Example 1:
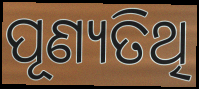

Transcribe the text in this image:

ପୂଣ୍ୟତିଥି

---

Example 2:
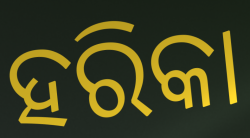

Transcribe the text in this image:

ହରିକା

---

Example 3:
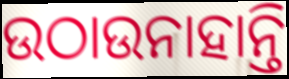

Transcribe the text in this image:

ଉଠାଉନାହାନ୍ତି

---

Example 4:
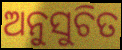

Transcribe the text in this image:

ଅନୁସୁଚିତ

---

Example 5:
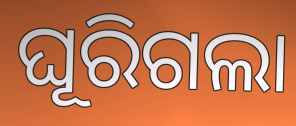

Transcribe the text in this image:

ଘୂରିଗଲା